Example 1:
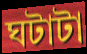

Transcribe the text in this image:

ঘটাটা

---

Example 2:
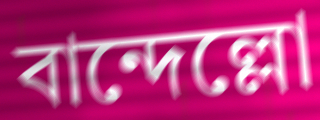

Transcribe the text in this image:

বান্দেল্লো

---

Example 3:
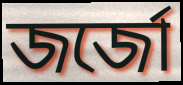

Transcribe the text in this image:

জর্জো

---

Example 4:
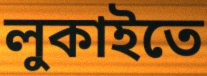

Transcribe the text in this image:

লুকাইতে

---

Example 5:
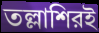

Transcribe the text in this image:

তল্লাশিরই